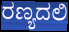
ರಣ್ಯದಲಿ